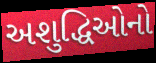
અશુદ્ધિઓનો